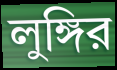
লুঙ্গির